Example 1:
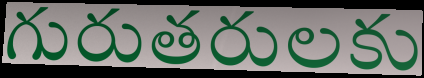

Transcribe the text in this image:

గురుతరులకు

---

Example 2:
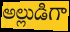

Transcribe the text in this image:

అల్లుడిగా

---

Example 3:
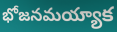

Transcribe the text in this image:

భోజనమయ్యాక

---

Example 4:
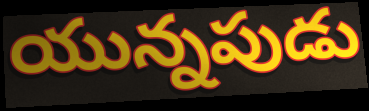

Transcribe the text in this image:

యున్నపుడు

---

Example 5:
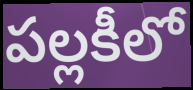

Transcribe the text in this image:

పల్లకీలో